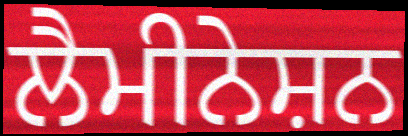
ਲੈਮੀਨੇਸ਼ਨ